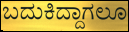
ಬದುಕಿದ್ದಾಗಲೂ